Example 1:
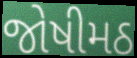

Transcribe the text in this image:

જોષીમઠ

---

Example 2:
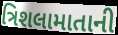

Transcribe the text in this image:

ત્રિશલામાતાની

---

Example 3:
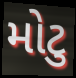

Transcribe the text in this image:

મોટુ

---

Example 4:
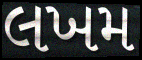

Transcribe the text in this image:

લખમ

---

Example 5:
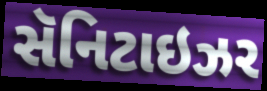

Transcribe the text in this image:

સૅનિટાઇઝર